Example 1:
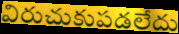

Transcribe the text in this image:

విరుచుకుపడలేదు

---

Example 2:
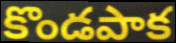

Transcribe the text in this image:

కొండపాక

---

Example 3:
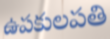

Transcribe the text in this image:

ఉపకులపతి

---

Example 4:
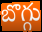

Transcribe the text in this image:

బొగ్గు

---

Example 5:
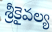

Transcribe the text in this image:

శ్రీకైవల్య